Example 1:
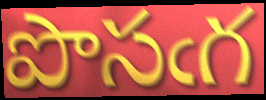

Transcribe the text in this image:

పొసఁగ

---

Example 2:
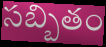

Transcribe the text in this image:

సబ్బితం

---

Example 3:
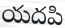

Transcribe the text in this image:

యదపి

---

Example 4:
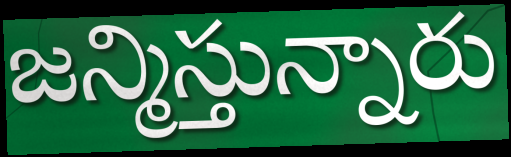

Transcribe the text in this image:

జన్మిస్తున్నారు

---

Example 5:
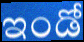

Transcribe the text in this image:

ఇండో